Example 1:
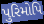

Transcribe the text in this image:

પુરિમોપિ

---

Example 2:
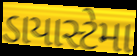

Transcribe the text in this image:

ડાયાસ્ટેમા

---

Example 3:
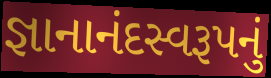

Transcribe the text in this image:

જ્ઞાનાનંદસ્વરૂપનું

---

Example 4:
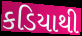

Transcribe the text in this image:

કડિયાથી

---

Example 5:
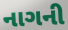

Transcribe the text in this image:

નાગની